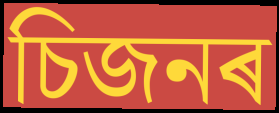
চিজনৰ